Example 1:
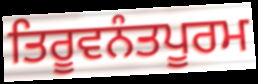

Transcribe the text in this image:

ਤਿਰੂਵਨੰਤਪੂਰਮ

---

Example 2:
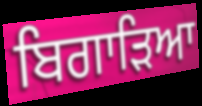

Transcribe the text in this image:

ਬਿਗਾੜਿਆ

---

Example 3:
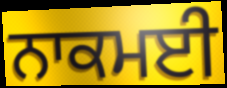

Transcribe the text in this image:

ਨਾਕਮਈ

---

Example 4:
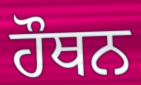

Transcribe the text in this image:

ਹੌਥਨ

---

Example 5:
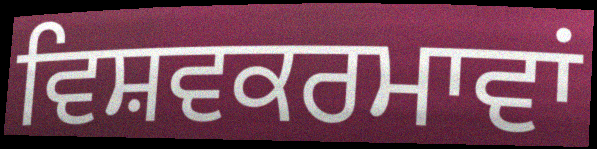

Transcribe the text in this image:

ਵਿਸ਼ਵਕਰਮਾਵਾਂ